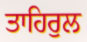
ਤਾਹਿਰੁਲ